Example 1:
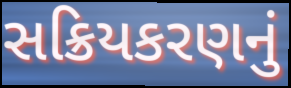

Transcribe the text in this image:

સક્રિયકરણનું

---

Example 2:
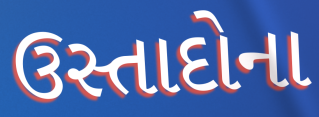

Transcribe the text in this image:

ઉસ્તાદોના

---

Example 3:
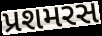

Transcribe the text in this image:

પ્રશમરસ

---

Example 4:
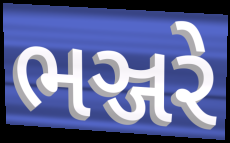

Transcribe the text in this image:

ભઞ્જરે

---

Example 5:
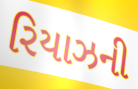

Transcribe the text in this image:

રિયાઝની